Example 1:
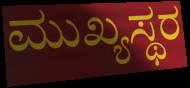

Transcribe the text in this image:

ಮುಖ್ಯಸ್ಥರ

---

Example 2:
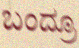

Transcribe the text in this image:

ಬಂದ್ರೂ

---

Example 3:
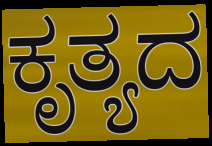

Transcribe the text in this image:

ಕೃತ್ಯದ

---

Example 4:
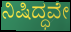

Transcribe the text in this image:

ನಿಷಿದ್ಧವೇ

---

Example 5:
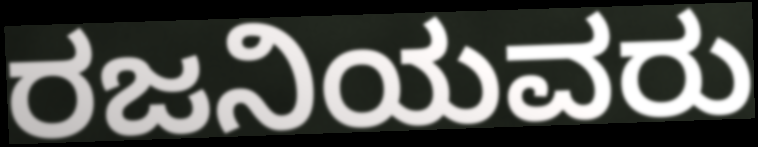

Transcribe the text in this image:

ರಜನಿಯವರು